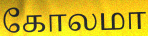
கோலமா